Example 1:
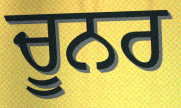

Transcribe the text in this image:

ਚੂਨਰ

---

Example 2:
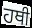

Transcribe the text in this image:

ਹਥੀ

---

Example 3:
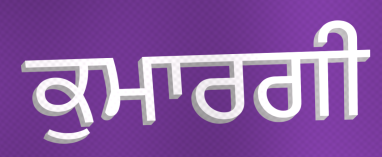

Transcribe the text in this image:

ਕੁਮਾਰਗੀ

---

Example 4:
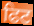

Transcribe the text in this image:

ਫਿਟ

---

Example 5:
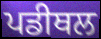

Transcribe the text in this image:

ਪਡੀਥਲ